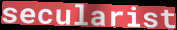
secularist